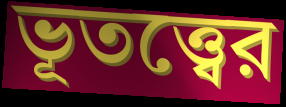
ভূতত্ত্বের